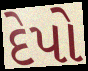
દેપો